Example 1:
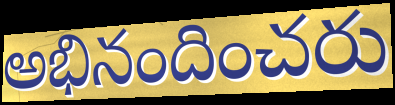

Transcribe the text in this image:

అభినందించరు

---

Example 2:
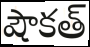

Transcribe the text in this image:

షౌకత్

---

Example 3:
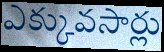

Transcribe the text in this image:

ఎక్కువసార్లు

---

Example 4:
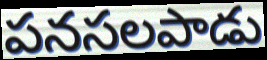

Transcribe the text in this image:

పనసలపాడు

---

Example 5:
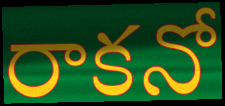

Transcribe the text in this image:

రాకనో